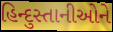
હિન્દુસ્તાનીઓને